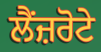
ਲੈਂਜ਼ਰੋਟੇ